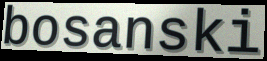
bosanski